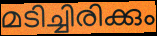
മടിച്ചിരിക്കും